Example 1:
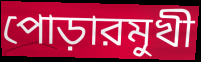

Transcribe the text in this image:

পোড়ারমুখী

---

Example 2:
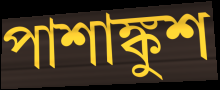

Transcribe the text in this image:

পাশাঙ্কুশ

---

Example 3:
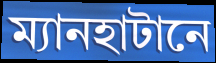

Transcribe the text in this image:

ম্যানহাটানে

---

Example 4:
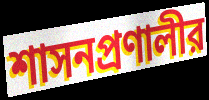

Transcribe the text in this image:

শাসনপ্রণালীর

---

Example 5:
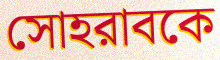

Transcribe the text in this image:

সোহরাবকে